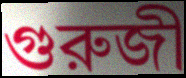
গুরুজী